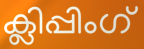
ക്ലിപ്പിംഗ്